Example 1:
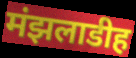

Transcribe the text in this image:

मंझलाडीह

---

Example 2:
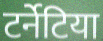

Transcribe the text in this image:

टर्नेटिया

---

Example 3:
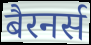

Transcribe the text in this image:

बैरनर्स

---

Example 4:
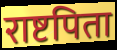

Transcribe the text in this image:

राष्टपिता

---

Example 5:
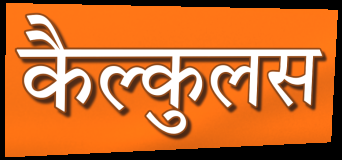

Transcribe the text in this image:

कैल्कुलस